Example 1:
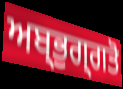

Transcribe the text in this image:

ਅਬ੍ਭੁਗ੍ਗਤੋ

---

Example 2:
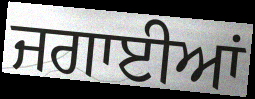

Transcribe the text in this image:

ਜਗਾਈਆਂ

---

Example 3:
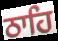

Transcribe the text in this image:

ਠਾਹਿ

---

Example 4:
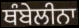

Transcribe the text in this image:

ਥੰਬੇਲੀਨਾ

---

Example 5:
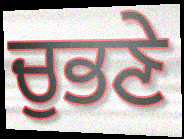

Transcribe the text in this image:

ਚੁਭਣੇ